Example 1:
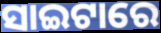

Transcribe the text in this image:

ସାଇଟାରେ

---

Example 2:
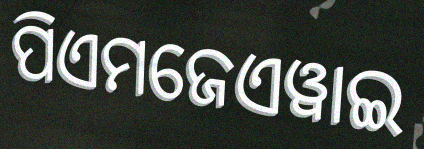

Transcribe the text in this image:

ପିଏମଜେଏୱାଇ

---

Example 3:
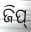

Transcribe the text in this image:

ଜିପ୍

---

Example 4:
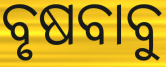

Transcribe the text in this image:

ବୃଷବାବୁ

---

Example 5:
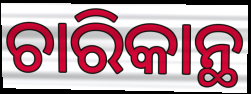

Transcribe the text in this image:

ଚାରିକାନ୍ଥ